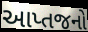
આપ્તજનો